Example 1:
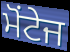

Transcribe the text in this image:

ਮੋਂਟੇਜ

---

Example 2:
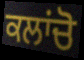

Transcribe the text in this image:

ਕਲਾਂਚੋ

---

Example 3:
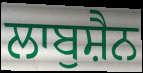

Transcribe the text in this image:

ਲਾਬੁਸ਼ੈਨ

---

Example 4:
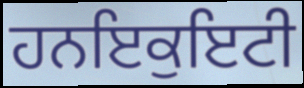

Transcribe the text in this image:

ਹਨਇਕੁਇਟੀ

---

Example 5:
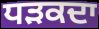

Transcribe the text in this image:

ਧੜਕਦਾ